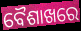
ବୈଶାଖରେ